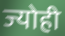
ज्योही